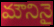
మౌనినై